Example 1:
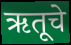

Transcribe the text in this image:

ऋतूचे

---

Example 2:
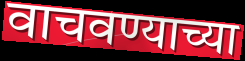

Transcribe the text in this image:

वाचवण्याच्या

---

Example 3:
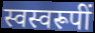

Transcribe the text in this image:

स्वस्वरूपीं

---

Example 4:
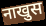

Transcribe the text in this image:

नाखुस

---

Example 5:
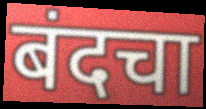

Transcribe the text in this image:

बंदचा